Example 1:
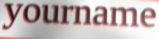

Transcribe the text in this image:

yourname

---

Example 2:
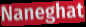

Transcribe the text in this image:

Naneghat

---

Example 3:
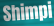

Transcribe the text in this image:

Shimpi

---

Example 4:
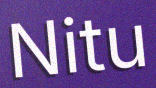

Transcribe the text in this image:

Nitu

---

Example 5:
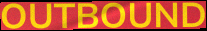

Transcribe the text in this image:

OUTBOUND